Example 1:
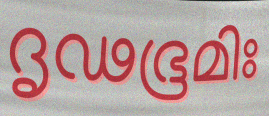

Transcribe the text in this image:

ദൃഢഭൂമിഃ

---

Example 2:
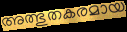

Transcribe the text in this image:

അത്ഭുതകരമായ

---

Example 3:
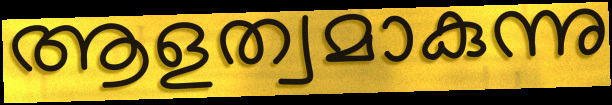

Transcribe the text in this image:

ആളത്വമാകുന്നു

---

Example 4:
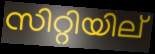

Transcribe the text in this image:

സിറ്റിയില്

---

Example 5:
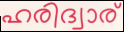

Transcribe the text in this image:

ഹരിദ്വാര്